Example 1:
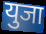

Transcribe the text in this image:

युजा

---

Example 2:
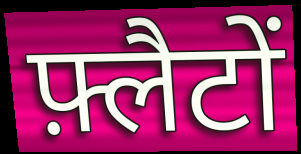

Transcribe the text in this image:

फ़्लैटों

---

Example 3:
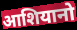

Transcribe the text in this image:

आशियानो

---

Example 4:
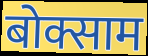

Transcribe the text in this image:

बोक्साम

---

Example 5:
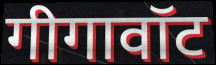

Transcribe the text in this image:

गीगावॉट